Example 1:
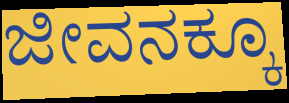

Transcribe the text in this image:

ಜೀವನಕ್ಕೂ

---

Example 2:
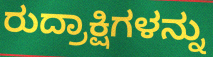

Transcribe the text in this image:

ರುದ್ರಾಕ್ಷಿಗಳನ್ನು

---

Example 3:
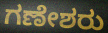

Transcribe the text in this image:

ಗಣೇಶರು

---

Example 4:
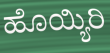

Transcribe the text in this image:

ಹೊಯ್ಯಿರಿ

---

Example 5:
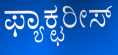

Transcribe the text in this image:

ಫ್ಯಾಕ್ಟರೀಸ್